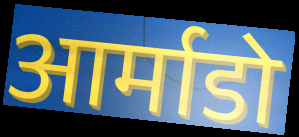
आर्माडो